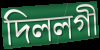
দিললগী